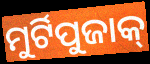
ମୁର୍ଟିପୁଜାକ୍